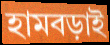
হামবড়াই